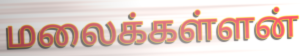
மலைக்கள்ளன்